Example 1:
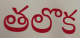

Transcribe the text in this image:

తలొక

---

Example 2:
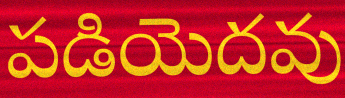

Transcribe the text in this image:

పడియెదవు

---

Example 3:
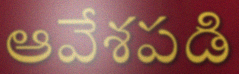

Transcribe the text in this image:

ఆవేశపడి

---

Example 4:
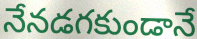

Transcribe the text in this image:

నేనడగకుండానే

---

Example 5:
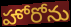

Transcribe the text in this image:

హోరోను